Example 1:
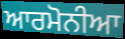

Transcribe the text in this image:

ਆਰਮੋਨੀਆ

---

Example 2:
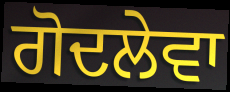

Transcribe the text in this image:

ਗੋਦਲੇਵਾ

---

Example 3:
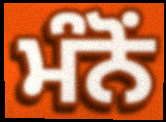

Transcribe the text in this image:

ਮੰਨੋਂ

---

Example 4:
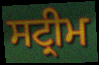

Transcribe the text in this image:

ਸਟ੍ਰੀਮ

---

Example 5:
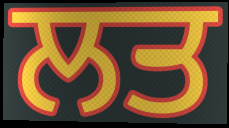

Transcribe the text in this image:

ਲਤ